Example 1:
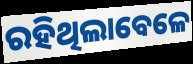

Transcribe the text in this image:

ରହିଥିଲାବେଳେ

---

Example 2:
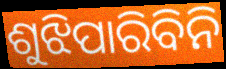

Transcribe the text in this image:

ଶୁଝିପାରିବିନି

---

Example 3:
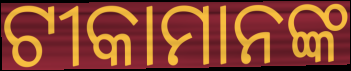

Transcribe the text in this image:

ଟୀକାମାନଙ୍କ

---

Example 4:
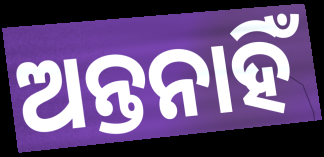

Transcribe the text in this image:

ଅନ୍ତନାହିଁ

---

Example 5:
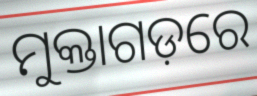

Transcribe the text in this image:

ମୁକ୍ତାଗଡ଼ରେ